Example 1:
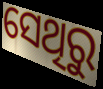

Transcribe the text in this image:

ସେଥିରୁ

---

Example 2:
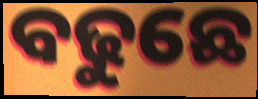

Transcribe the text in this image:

ବଢୁଛେ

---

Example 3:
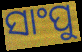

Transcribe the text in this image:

ସାଂପୁ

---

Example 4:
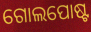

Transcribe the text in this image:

ଗୋଲପୋଷ୍ଟ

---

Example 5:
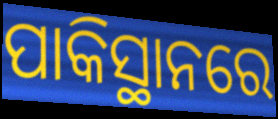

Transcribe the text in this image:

ପାକିସ୍ଥାନରେ